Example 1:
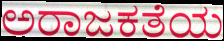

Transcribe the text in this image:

ಅರಾಜಕತೆಯ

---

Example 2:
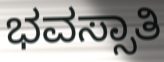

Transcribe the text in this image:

ಭವಸ್ಸಾತಿ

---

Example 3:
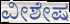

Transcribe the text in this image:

ವೀಶೇಷ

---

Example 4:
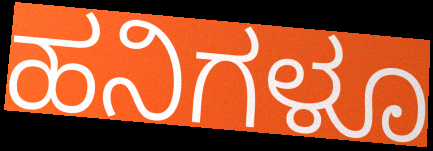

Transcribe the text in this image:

ಹನಿಗಳೂ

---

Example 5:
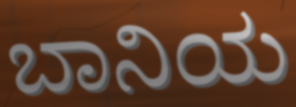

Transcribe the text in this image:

ಬಾನಿಯ